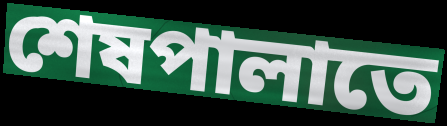
শেষপালাতে